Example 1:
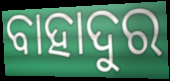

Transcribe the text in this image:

ବାହାଦୁର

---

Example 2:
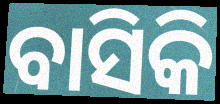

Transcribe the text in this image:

ବାସିକି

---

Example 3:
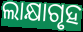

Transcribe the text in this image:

ଲାକ୍ଷାଗୃହ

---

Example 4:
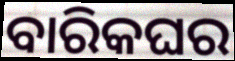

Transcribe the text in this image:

ବାରିକଘର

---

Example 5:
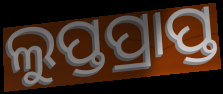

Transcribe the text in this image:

ଲୁପ୍ତପ୍ରାପ୍ତ